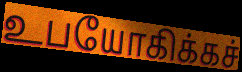
உபயோகிக்கச்